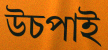
উচপাই